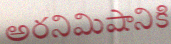
అరనిమిషానికి